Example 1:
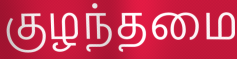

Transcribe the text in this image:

குழந்தமை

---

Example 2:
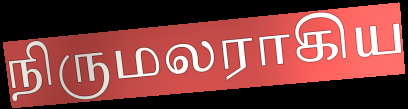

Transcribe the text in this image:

நிருமலராகிய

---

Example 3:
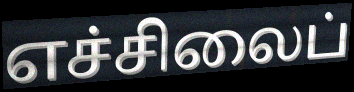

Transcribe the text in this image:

எச்சிலைப்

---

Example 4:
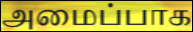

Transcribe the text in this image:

அமைப்பாக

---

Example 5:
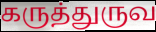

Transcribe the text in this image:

கருத்துருவ